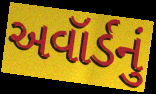
અવૉર્ડનું